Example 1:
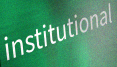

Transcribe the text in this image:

institutional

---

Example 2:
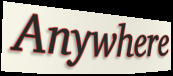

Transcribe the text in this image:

Anywhere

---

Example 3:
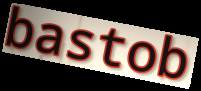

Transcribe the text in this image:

bastob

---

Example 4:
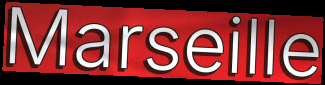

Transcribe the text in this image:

Marseille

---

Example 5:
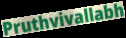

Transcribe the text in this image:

Pruthvivallabh